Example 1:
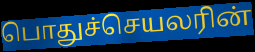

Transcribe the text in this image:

பொதுச்செயலரின்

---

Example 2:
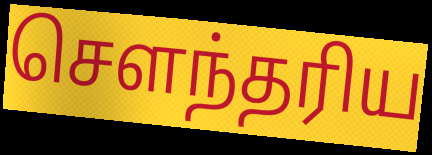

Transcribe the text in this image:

சௌந்தரிய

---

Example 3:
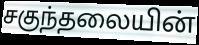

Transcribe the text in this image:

சகுந்தலையின்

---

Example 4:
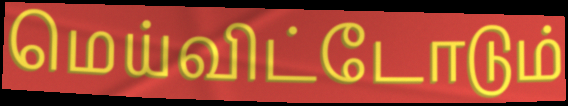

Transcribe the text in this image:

மெய்விட்டோடும்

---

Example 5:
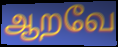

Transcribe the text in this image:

ஆறவே